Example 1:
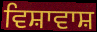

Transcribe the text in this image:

ਵਿਸ਼ਾਵਾਸ਼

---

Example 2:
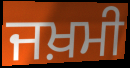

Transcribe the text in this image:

ਜਖ਼ਮੀ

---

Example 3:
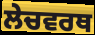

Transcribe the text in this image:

ਲੇਚਵਰਥ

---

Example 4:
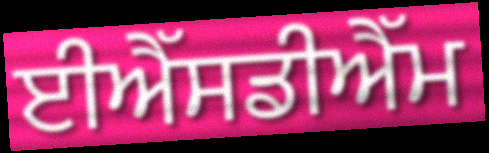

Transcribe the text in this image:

ਈਐੱਸਡੀਐੱਮ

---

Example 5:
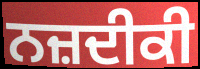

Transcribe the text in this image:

ਨਜ਼ਦੀਕੀ